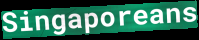
Singaporeans